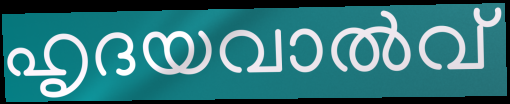
ഹൃദയവാൽവ്